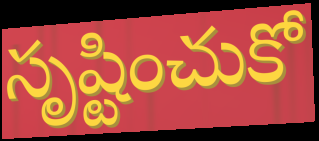
సృష్టించుకో